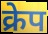
क्रेप